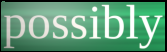
possibly